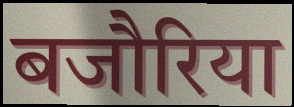
बजौरिया